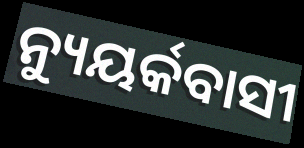
ନ୍ୟୁୟର୍କବାସୀ